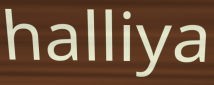
halliya